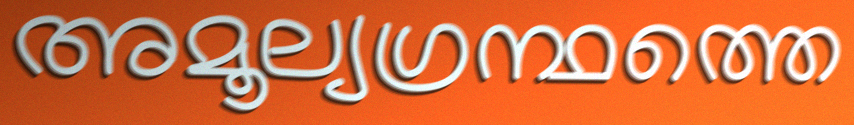
അമൂല്യഗ്രന്ഥത്തെ